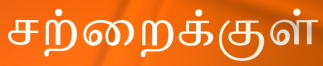
சற்றைக்குள்